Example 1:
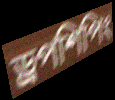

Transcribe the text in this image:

ড্রপশিপিং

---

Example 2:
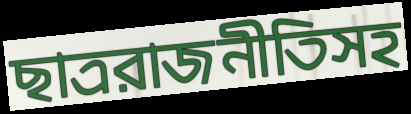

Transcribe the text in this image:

ছাত্ররাজনীতিসহ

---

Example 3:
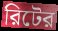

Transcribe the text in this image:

রিটের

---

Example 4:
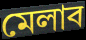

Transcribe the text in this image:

মেলাব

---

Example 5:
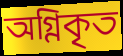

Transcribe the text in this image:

অগ্নিকৃত